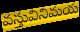
వస్తువినిమయ